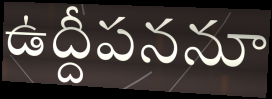
ఉద్దీపననూ